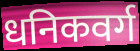
धनिकवर्ग